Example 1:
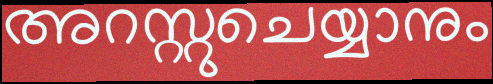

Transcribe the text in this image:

അറസ്റ്റുചെയ്യാനും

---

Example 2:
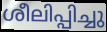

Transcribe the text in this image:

ശീലിപ്പിച്ചു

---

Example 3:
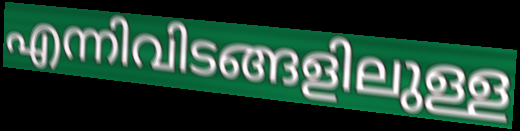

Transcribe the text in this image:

എന്നിവിടങ്ങളിലുള്ള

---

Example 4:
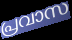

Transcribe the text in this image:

പ്രവാസ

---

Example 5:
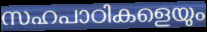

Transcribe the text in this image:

സഹപാഠികളെയും